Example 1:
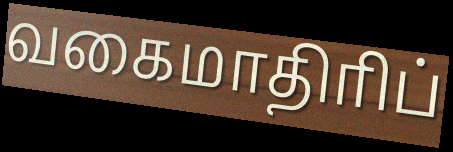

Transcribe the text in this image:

வகைமாதிரிப்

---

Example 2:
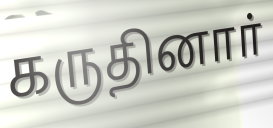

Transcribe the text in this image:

கருதினார்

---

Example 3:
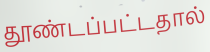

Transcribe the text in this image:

தூண்டப்பட்டதால்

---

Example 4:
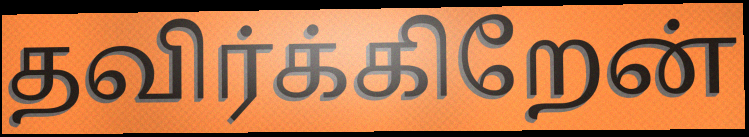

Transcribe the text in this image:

தவிர்க்கிறேன்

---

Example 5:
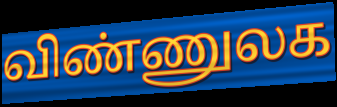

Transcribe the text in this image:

விண்ணுலக